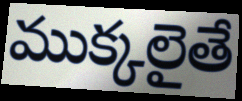
ముక్కలైతే